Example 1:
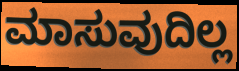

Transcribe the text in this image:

ಮಾಸುವುದಿಲ್ಲ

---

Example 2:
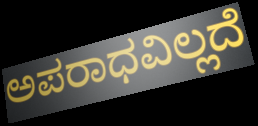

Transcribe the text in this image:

ಅಪರಾಧವಿಲ್ಲದೆ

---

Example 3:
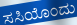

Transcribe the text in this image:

ಸಸಿಯೊಂದು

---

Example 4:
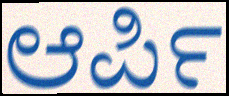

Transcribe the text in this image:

ಆರ್ಪಿ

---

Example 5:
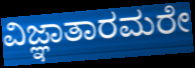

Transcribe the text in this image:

ವಿಜ್ಞಾತಾರಮರೇ